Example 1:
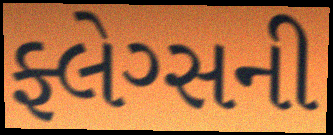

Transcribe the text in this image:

ફ્લેગ્સની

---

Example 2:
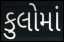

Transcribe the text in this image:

કુલોમાં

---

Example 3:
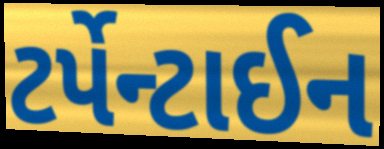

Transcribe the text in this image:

ટર્પેન્ટાઈન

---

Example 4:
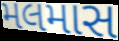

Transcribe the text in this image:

મલમાસ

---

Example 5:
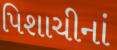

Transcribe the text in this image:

પિશાચીનાં